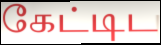
கேட்டிட